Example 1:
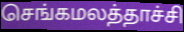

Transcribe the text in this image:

செங்கமலத்தாச்சி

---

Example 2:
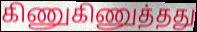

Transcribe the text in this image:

கிணுகிணுத்தது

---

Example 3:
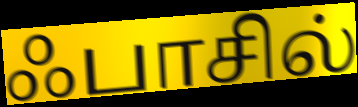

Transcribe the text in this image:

ஃபாசில்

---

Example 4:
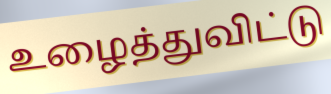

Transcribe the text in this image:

உழைத்துவிட்டு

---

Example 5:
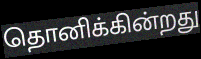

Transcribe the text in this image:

தொனிக்கின்றது